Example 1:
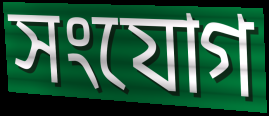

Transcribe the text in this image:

সংযোগ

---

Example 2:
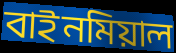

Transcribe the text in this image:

বাইনমিয়াল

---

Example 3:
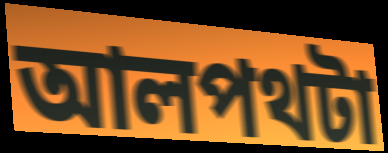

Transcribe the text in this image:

আলপথটা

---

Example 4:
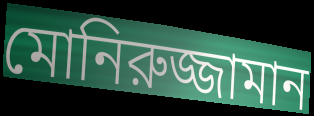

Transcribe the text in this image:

মোনিরুজ্জামান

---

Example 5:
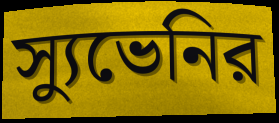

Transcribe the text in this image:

স্যুভেনির